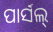
ପାର୍ସଲ୍